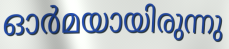
ഓർമയായിരുന്നു